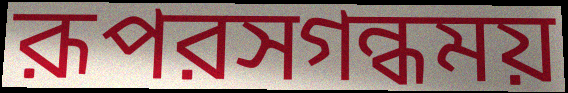
রূপরসগন্ধময়